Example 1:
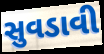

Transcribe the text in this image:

સુવડાવી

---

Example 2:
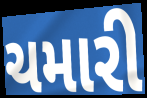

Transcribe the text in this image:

ચમારી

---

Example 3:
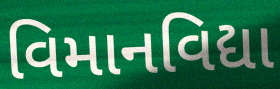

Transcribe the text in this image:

વિમાનવિદ્યા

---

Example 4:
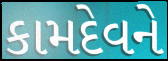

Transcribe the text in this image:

કામદેવને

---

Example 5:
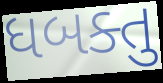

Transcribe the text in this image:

ધબક્તુ